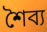
শৈব্য